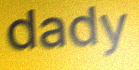
dady